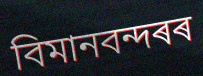
বিমানবন্দৰৰ